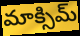
మాక్సిమ్